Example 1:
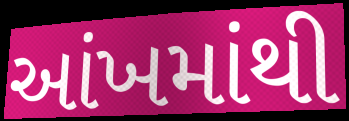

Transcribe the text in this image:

આંખમાંથી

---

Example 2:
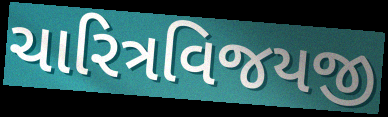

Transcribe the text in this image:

ચારિત્રવિજયજી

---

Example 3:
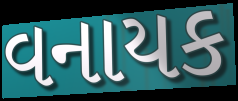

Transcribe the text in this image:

વનાયક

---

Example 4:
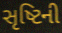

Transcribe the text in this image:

સૃષ્ટિની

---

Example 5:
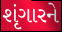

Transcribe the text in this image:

શૃંગારને